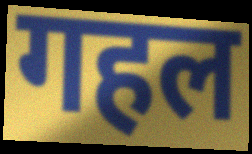
गहल